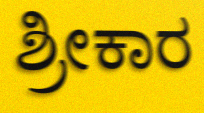
ಶ್ರೀಕಾರ